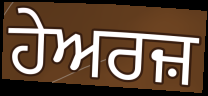
ਹੇਅਰਜ਼